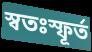
স্বতঃস্ফূৰ্ত